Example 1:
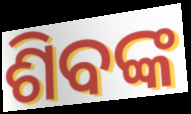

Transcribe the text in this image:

ଶିବଙ୍କ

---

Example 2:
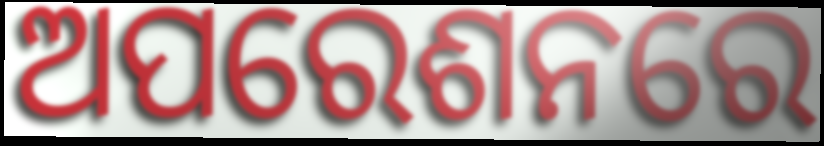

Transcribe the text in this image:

ଅପରେଶନରେ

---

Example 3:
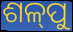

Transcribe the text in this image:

ଶଳ୍‍ପୁ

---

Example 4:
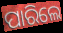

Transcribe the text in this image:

ପାରିଲେ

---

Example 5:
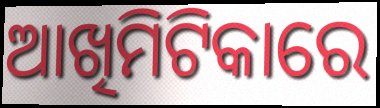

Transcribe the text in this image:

ଆଖିମିଟିକାରେ